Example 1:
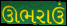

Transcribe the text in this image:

ઊભરાઉં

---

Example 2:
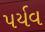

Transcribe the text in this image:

પર્યવ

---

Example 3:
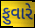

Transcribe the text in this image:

ફુવારે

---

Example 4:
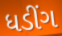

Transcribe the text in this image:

ધડીંગ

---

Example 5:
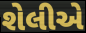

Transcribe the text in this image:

શેલીએ